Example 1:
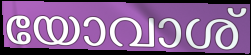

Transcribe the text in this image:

യോവാശ്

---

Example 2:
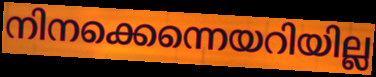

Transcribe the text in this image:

നിനക്കെന്നെയറിയില്ല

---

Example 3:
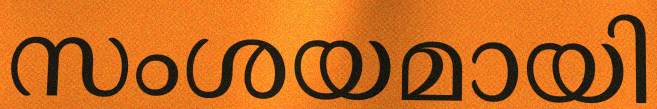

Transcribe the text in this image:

സംശയമായി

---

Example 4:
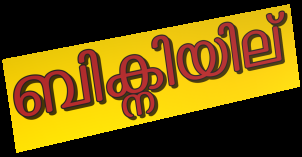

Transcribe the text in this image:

ബിക്നിയില്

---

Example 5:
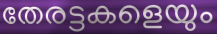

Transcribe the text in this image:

തേരട്ടകളെയും